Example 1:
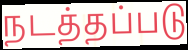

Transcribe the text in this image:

நடத்தப்படு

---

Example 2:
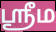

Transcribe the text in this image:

ஶ்ரீம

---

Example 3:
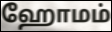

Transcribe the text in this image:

ஹோமம்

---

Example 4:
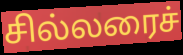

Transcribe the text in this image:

சில்லரைச்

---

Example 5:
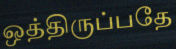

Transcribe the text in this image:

ஒத்திருப்பதே